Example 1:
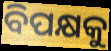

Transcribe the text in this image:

ବିପକ୍ଷକୁ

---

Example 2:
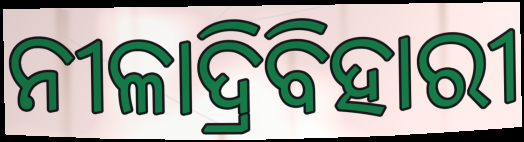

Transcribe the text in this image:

ନୀଳାଦ୍ରିବିହାରୀ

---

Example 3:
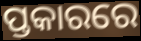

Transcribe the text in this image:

ପ୍ତକାରରେ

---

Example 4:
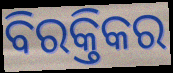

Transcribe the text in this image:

ବିରକ୍ତିକର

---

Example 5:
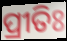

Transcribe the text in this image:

ପ୍ରୀତିଃ